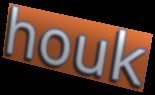
houk